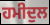
ਹਮੀਦੁਲ